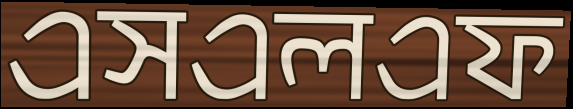
এসএলএফ